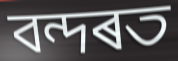
বন্দৰত